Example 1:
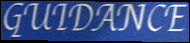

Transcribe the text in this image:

GUIDANCE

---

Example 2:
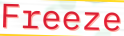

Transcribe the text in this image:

Freeze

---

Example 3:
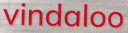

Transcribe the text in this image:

vindaloo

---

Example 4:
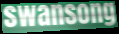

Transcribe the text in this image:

swansong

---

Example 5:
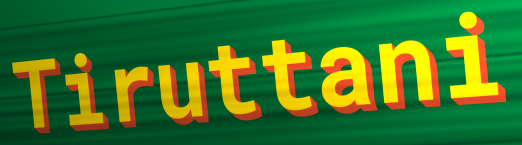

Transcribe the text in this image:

Tiruttani